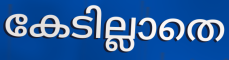
കേടില്ലാതെ